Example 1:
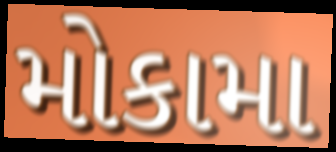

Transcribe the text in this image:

મોકામા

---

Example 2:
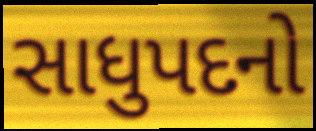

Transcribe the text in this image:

સાધુપદનો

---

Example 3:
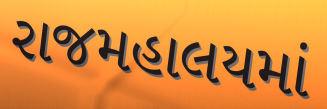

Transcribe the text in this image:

રાજમહાલયમાં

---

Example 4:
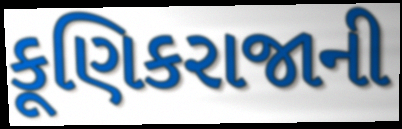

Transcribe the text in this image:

કૂણિકરાજાની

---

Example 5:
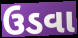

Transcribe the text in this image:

ઉડવા